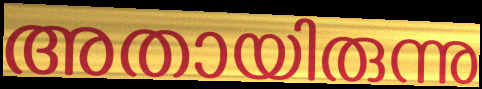
അതായിരുന്നു